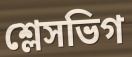
শ্লেসভিগ